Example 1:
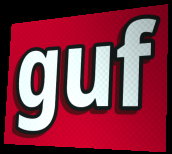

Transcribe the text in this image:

guf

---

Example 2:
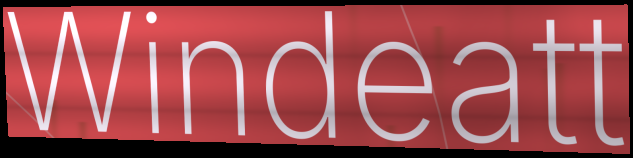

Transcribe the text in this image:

Windeatt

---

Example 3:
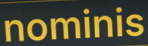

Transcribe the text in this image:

nominis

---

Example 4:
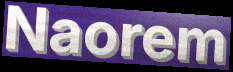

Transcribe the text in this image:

Naorem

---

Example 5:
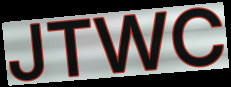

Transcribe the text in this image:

JTWC